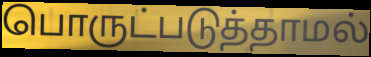
பொருட்படுத்தாமல்